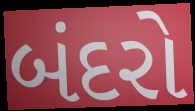
બંદરો